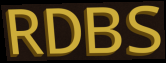
RDBS